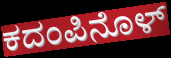
ಕದಂಪಿನೊಳ್